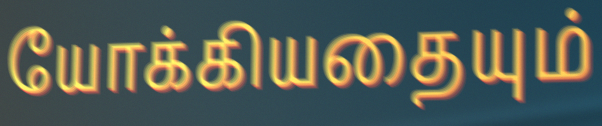
யோக்கியதையும்